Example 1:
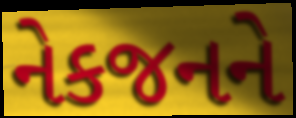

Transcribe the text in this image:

નેકજનને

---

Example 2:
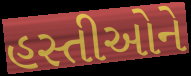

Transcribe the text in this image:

હસ્તીઓને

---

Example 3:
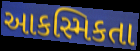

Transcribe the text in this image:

આકસ્મિકતા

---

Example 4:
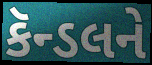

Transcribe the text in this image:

કૅન્ડલને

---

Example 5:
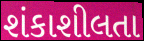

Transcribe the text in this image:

શંકાશીલતા